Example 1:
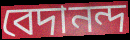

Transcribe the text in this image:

বেদানন্দ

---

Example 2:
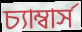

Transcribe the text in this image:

চ্যাম্বার্স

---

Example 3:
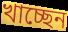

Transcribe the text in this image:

খাচ্ছেন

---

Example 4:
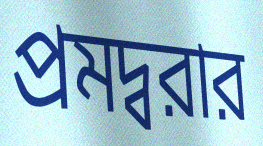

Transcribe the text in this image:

প্রমদ্বরার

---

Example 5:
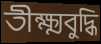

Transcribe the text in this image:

তীক্ষ্মবুদ্ধি